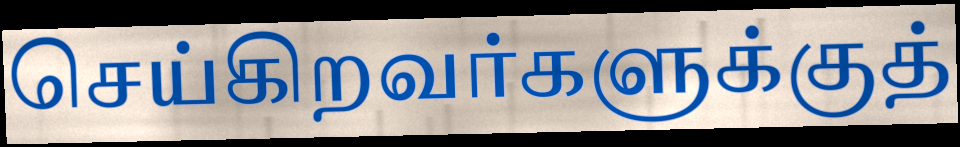
செய்கிறவர்களுக்குத்